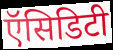
ऍसिडिटी